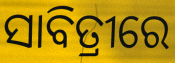
ସାବିତ୍ରୀରେ